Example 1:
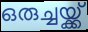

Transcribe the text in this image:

ഒരുച്ചയ്ക്ക്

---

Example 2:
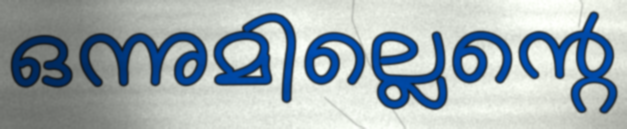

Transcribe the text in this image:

ഒന്നുമില്ലെന്റെ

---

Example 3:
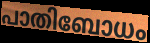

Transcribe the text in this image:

പാതിബോധം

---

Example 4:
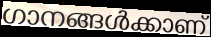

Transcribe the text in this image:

ഗാനങ്ങൾക്കാണ്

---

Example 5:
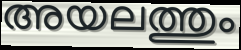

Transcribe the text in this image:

അയലത്തും